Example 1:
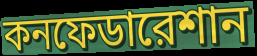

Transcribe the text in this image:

কনফেডারেশান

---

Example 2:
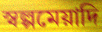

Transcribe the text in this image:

স্বল্পমেয়াদি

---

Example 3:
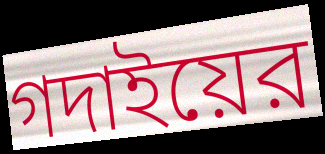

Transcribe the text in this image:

গদাইয়ের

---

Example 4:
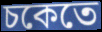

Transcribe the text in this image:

চকেতে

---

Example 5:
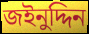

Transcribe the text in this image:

জইনুদ্দিন